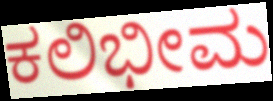
ಕಲಿಭೀಮ